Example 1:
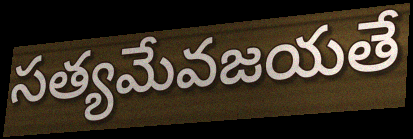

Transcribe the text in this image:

సత్యమేవజయతే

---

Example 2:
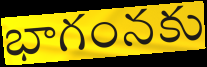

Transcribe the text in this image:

భాగంనకు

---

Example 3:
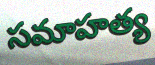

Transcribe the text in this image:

సమాహత్య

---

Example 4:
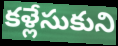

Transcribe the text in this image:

కళ్లేసుకుని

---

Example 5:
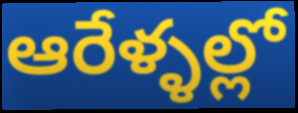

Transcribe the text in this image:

ఆరేళ్ళల్లో